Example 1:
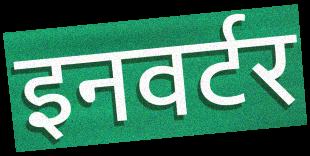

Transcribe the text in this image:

इनवर्टर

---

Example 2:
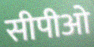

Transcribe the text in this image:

सीपीओ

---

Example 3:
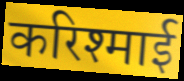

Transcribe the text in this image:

करिश्माई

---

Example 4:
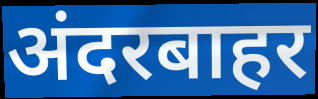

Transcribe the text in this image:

अंदरबाहर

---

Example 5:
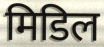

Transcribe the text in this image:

मिडिल